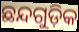
ଛନ୍ଦଗୁଡ଼ିକ